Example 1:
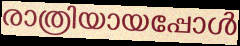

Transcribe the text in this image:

രാത്രിയായപ്പോൾ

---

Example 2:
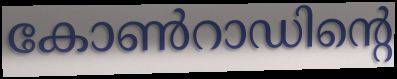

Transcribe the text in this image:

കോൺറാഡിന്റെ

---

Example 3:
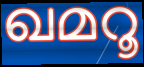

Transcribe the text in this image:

ഖമറൂ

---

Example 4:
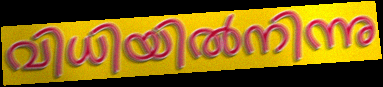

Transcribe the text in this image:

വിധിയിൽനിന്നു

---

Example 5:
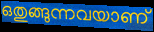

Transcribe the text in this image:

ഒതുങ്ങുന്നവയാണ്